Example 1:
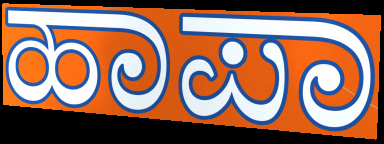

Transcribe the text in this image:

ಹಾಪಾ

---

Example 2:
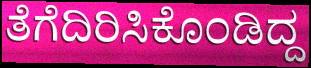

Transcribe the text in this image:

ತೆಗೆದಿರಿಸಿಕೊಂಡಿದ್ದ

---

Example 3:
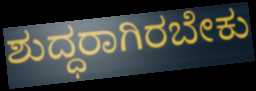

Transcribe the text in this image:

ಶುದ್ಧರಾಗಿರಬೇಕು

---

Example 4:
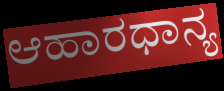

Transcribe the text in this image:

ಆಹಾರಧಾನ್ಯ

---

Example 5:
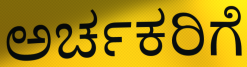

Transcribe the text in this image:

ಅರ್ಚಕರಿಗೆ